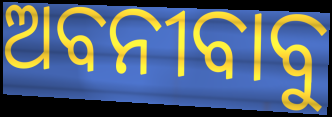
ଅବନୀବାବୁ